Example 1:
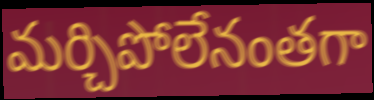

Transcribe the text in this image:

మర్చిపోలేనంతగా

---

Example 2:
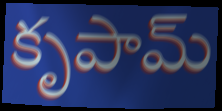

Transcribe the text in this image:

కృపామ్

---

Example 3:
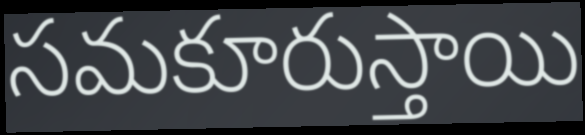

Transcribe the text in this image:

సమకూరుస్తాయి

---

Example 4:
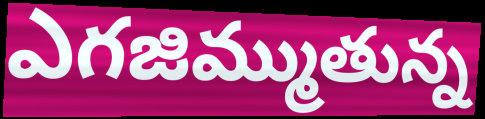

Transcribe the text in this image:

ఎగజిమ్ముతున్న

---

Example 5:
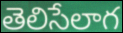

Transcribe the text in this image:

తెలిసేలాగ